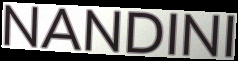
NANDINI